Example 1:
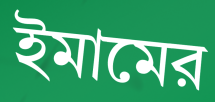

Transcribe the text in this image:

ইমামের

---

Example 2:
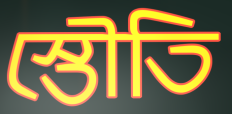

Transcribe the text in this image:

স্তৌতি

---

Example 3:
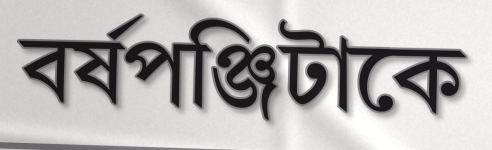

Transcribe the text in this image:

বর্ষপঞ্জিটাকে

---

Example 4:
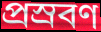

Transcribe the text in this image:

প্রস্রবণ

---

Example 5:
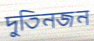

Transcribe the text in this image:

দুতিনজন